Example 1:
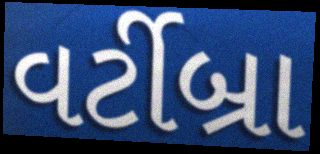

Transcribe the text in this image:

વર્ટીબ્રા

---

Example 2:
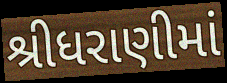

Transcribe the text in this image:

શ્રીધરાણીમાં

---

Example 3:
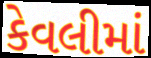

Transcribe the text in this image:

કેવલીમાં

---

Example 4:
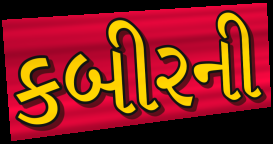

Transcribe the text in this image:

કબીરની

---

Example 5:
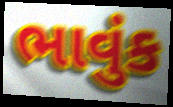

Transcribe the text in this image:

ભાવુંક